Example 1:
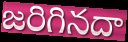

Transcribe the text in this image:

జరిగినదా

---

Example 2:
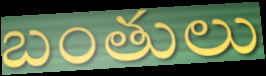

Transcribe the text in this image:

బంతులు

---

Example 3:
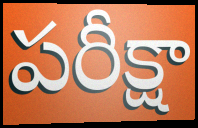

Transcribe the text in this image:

పరీక్షా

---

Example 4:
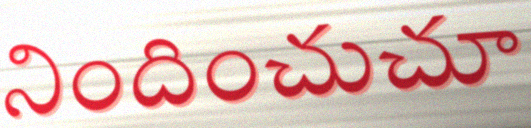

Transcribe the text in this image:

నిందించుచూ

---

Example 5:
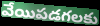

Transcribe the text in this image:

వేయిపడగలకు